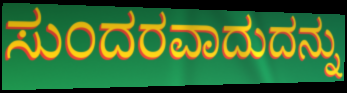
ಸುಂದರವಾದುದನ್ನು